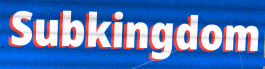
Subkingdom